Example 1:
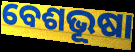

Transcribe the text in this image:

ବେଶଭୂଷା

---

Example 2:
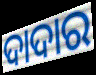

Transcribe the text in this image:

ଦାଦାର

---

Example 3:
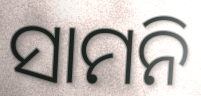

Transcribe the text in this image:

ସାମନି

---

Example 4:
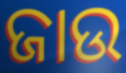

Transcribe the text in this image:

ଜାଉ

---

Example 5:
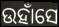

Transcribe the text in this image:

ଉହାଁସେ